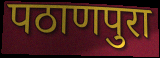
पठाणपुरा